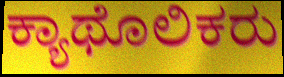
ಕ್ಯಾಥೊಲಿಕರು